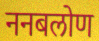
ननबलोण